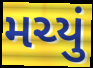
મચ્યું